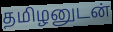
தமிழனுடன்